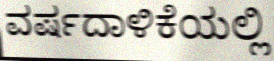
ವರ್ಷದಾಳಿಕೆಯಲ್ಲಿ